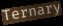
Ternary